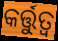
କର୍ତ୍ତୁତ୍ୱ